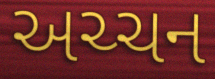
અચ્ચન